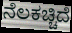
ನೆಲಕಚ್ಚಿದೆ